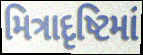
મિત્રાદૃષ્ટિમાં